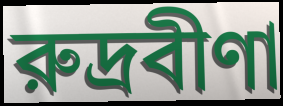
রুদ্রবীণা